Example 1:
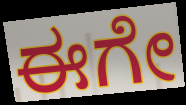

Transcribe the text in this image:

ಈಗೇ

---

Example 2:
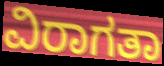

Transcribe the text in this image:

ವಿರಾಗತಾ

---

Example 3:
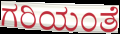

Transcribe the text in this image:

ಗರಿಯಂತೆ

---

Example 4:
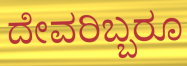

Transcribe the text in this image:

ದೇವರಿಬ್ಬರೂ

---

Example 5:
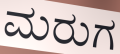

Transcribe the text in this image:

ಮರುಗ